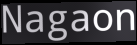
Nagaon